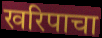
खरिपाचा